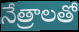
నేత్రాలతో